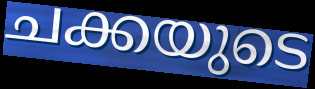
ചക്കയുടെ